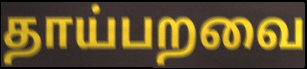
தாய்பறவை